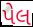
પેલ